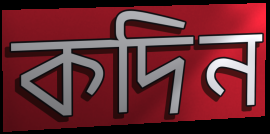
কদিন